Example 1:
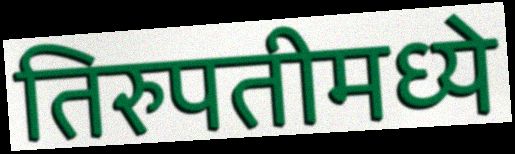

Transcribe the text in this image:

तिरुपतीमध्ये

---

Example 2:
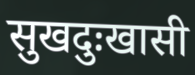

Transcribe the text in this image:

सुखदुःखासी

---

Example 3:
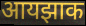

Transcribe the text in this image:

आयझाक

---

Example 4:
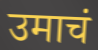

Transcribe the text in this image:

उमाचं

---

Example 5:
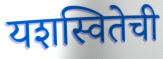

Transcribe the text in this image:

यशस्वितेची